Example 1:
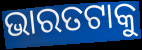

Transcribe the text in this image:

ଭାରତଟାକୁ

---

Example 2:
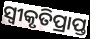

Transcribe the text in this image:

ସ୍ୱୀକୃତିପ୍ରାପ୍ତ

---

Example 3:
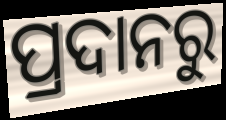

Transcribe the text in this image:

ପ୍ରଦାନରୁ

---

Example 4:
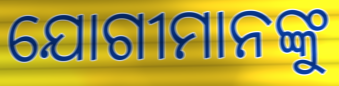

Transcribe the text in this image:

ଯୋଗୀମାନଙ୍କୁ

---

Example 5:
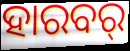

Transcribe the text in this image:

ହାରବର୍